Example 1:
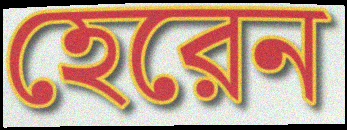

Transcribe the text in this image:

হেরেন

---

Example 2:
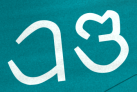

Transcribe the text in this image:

এণ্ড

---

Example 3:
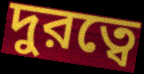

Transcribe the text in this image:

দুরত্বে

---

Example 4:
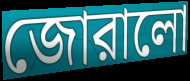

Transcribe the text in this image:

জোরালো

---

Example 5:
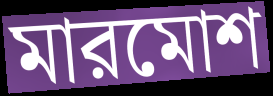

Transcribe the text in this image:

মারমোশ